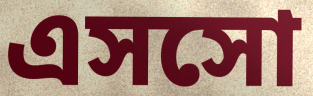
এসসো